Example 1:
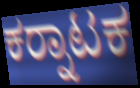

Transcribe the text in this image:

ಕರ‍್ನಾಟಕ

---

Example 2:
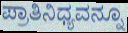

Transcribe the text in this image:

ಪ್ರಾತಿನಿಧ್ಯವನ್ನೂ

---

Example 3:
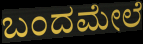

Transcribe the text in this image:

ಬಂದಮೇಲೆ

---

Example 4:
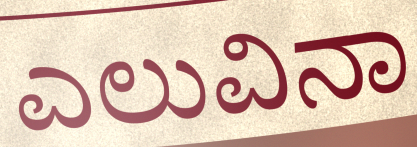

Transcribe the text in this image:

ಎಲುವಿನಾ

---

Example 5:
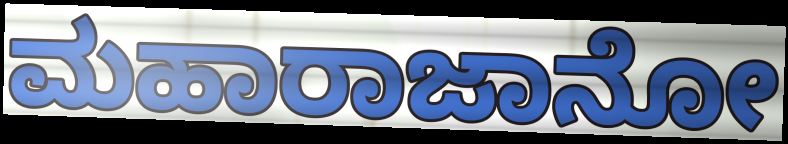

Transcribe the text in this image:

ಮಹಾರಾಜಾನೋ